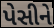
પેસીને